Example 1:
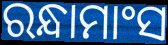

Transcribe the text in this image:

ରନ୍ଧାମାଂସ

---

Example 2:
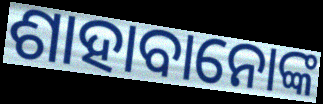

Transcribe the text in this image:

ଶାହାବାନୋଙ୍କ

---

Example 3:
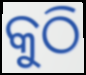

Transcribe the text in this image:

କୁଠି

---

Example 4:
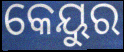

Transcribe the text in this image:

କେୟୁର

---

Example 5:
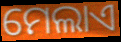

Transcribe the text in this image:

ମେଲାଏ